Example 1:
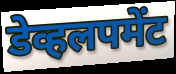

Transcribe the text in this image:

डेव्हलपमेंट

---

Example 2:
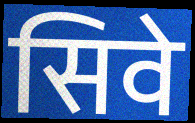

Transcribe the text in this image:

सिवे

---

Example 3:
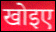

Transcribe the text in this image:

खोइए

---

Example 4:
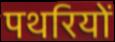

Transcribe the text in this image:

पथरियों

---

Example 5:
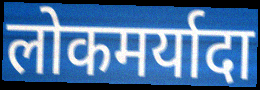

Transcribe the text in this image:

लोकमर्यादा